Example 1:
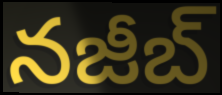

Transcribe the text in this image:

నజీబ్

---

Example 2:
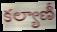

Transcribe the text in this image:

కల్యాణీ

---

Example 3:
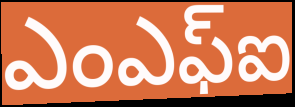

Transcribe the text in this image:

ఎంఎఫ్ఐ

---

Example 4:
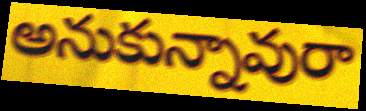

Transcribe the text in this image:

అనుకున్నావురా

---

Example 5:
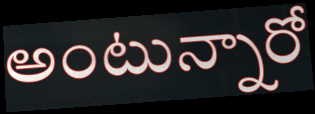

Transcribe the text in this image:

అంటున్నారో